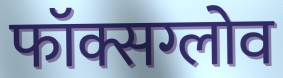
फॉक्सग्लोव